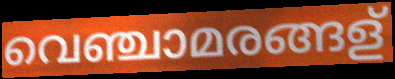
വെഞ്ചാമരങ്ങള്